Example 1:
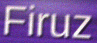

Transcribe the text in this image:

Firuz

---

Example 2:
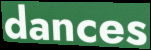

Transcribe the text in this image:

dances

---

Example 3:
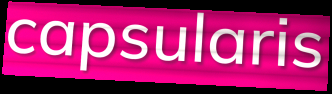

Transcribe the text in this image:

capsularis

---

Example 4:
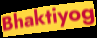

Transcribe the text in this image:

Bhaktiyog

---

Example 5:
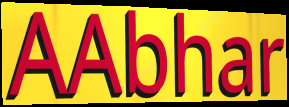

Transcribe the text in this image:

AAbhar